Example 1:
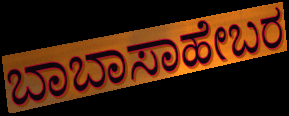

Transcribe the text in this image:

ಬಾಬಾಸಾಹೇಬರ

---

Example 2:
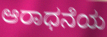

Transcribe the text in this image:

ಆರಾಧನೆಯ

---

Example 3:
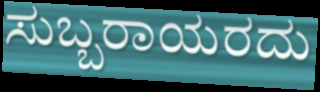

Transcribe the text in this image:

ಸುಬ್ಬರಾಯರದು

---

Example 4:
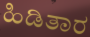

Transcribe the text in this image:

ಹಿಡಿತಾರ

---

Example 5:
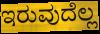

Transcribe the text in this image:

ಇರುವುದೆಲ್ಲ